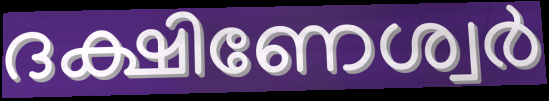
ദക്ഷിണേശ്വർ